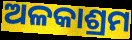
ଅଳକାଶ୍ରମ